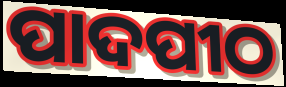
ପାଦପୀଠ